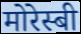
मोरेस्बी